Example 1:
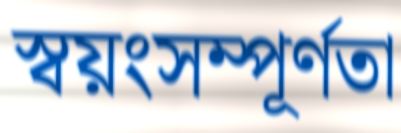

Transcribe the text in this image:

স্বয়ংসম্পূর্ণতা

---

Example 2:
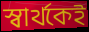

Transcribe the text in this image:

স্বার্থকেই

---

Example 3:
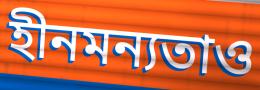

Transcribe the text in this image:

হীনমন্যতাও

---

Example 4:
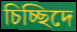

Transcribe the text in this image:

চিচ্ছিদে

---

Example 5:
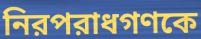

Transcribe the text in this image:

নিরপরাধগণকে